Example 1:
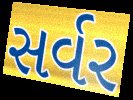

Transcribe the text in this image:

સર્વર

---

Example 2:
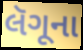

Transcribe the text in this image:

લૅગૂના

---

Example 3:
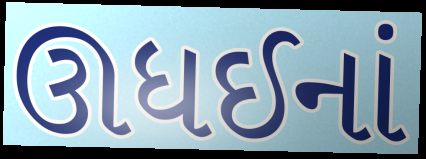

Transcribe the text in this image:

ઊધઈનાં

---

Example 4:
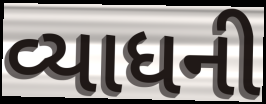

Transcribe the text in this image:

વ્યાધની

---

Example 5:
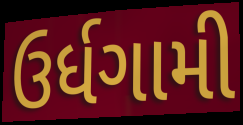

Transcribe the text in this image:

ઉર્ધગામી